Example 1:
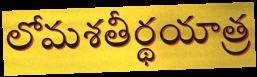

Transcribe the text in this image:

లోమశతీర్థయాత్ర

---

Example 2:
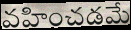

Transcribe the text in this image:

వహించడమే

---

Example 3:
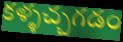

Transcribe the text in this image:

కళ్ళచ్చగడం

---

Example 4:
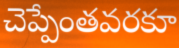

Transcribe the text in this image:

చెప్పేంతవరకూ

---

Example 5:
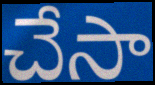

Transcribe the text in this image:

చేసా